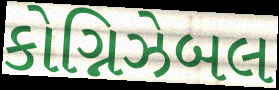
કોગ્નિઝેબલ